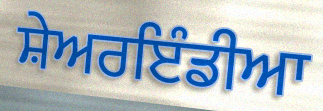
ਸ਼ੇਅਰਇੰਡੀਆ